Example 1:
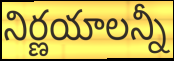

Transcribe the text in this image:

నిర్ణయాలన్నీ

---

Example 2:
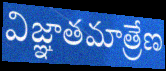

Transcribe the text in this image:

విజ్ఞాతమాత్రేణ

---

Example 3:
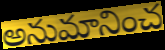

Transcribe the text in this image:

అనుమానించ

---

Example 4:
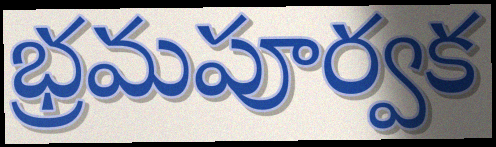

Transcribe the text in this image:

భ్రమపూర్వక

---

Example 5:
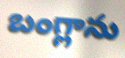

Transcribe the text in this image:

బంగ్లాను